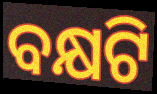
ବକ୍ଷଟି